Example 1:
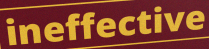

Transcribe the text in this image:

ineffective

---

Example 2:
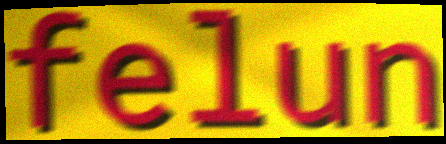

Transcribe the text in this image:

felun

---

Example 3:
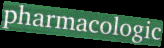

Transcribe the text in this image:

pharmacologic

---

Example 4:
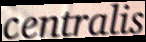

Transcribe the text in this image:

centralis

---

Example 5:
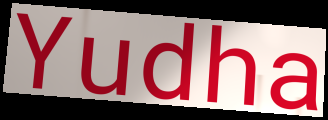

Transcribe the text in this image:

Yudha